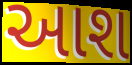
આશ